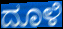
ದೂಳಿ